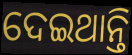
ଦେଇଥାନ୍ତି